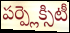
పర్ప్లెక్సిటీ